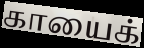
காயைக்